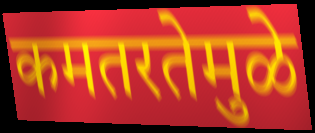
कमतरतेमुळे